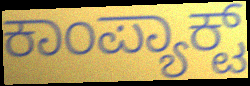
ಕಾಂಪ್ಯಾಕ್ಟ್